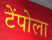
टेंपोला